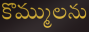
కొమ్ములను